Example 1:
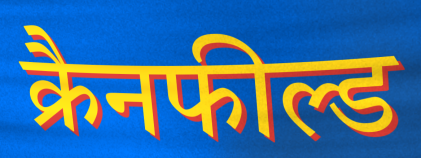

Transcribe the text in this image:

क्रैनफील्ड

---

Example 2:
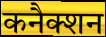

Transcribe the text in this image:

कनैक्शन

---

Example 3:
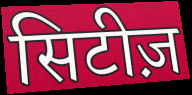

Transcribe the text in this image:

सिटीज़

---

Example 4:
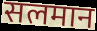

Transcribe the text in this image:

सलमान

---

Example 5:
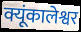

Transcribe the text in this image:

क्यूंकालेश्वर